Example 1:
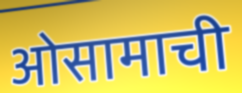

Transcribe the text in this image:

ओसामाची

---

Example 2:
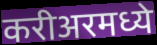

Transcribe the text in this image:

करीअरमध्ये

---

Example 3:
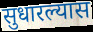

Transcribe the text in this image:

सुधारल्यास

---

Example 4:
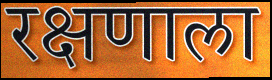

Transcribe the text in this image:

रक्षणाला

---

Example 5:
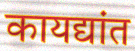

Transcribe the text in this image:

कायद्यांत